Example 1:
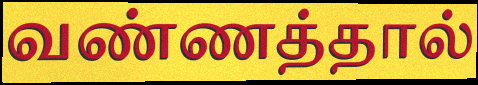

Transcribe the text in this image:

வண்ணத்தால்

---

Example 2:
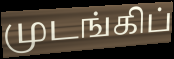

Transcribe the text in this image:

முடங்கிப்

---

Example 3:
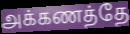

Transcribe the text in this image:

அக்கணத்தே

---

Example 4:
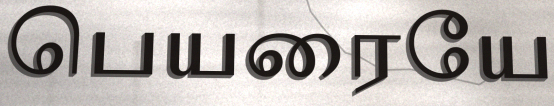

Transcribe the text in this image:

பெயரையே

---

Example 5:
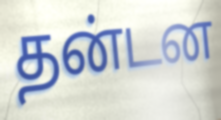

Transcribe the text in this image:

தன்டன